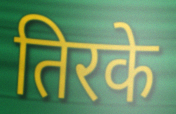
तिरके